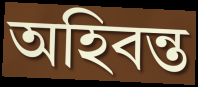
অহিবন্ত